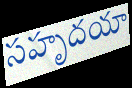
సహృదయా